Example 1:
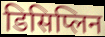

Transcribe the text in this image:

डिसिप्लिन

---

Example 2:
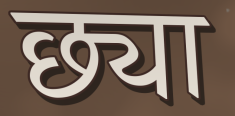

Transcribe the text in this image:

छ्या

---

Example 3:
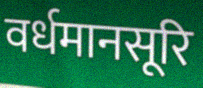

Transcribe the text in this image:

वर्धमानसूरि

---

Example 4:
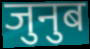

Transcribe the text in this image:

जुनुब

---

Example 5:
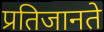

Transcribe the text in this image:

प्रतिजानते